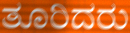
ತೂರಿದರು